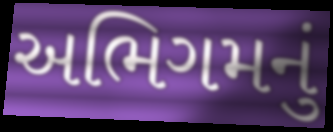
અભિગમનું